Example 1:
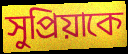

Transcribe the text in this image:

সুপ্রিয়াকে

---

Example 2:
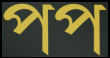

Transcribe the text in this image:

পপ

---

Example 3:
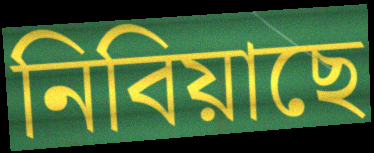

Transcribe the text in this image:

নিবিয়াছে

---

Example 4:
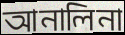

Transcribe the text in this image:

আনালিনা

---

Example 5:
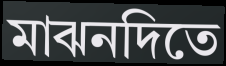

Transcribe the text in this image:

মাঝনদিতে